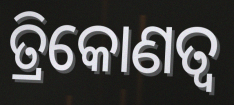
ତ୍ରିକୋଣତ୍ଵ